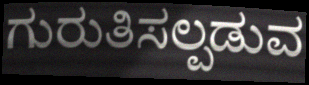
ಗುರುತಿಸಲ್ಪಡುವ